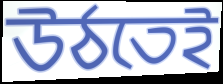
উঠতেই